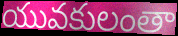
యువకులంతా